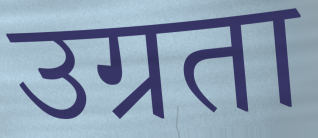
उग्रता